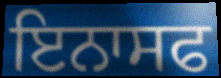
ਇਨਾਸਫ